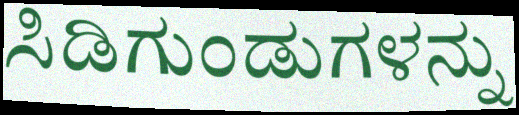
ಸಿಡಿಗುಂಡುಗಳನ್ನು